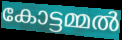
കോട്ടമ്മൽ